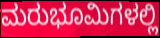
ಮರುಭೂಮಿಗಳಲ್ಲಿ